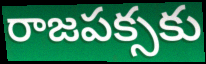
రాజపక్సకు